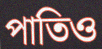
পাতিও